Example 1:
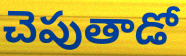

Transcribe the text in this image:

చెపుతాడో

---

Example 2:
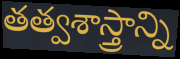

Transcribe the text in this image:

తత్వశాస్త్రాన్ని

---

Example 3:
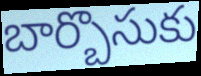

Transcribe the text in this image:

బార్బొసుకు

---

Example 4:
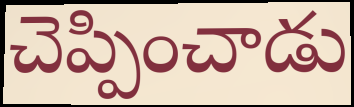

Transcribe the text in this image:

చెప్పించాడు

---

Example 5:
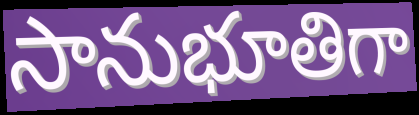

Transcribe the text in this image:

సానుభూతిగా